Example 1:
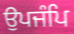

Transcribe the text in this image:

ਉਪਜੰਪਿ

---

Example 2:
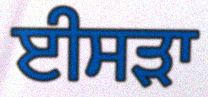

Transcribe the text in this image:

ਈਸੜਾ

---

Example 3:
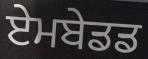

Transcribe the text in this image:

ਏਮਬੇਡਡ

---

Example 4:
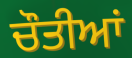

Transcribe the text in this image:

ਚੌਤੀਆਂ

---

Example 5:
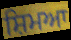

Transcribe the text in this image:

ਸ਼ਿਮਆ